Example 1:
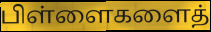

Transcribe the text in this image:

பிள்ளைகளைத்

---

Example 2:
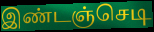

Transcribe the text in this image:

இண்டஞ்செடி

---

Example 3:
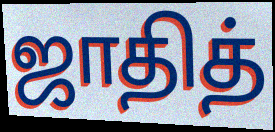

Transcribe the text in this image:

ஜாதித்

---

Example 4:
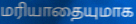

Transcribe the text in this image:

மரியாதையுமாக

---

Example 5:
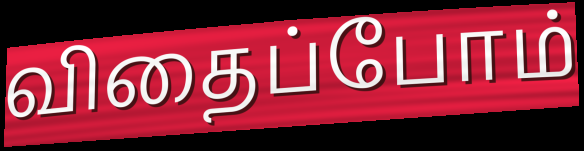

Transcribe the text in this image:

விதைப்போம்